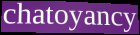
chatoyancy